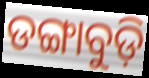
ଡଙ୍ଗାବୁଡ଼ି